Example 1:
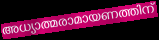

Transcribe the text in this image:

അധ്യാത്മരാമായണത്തിന്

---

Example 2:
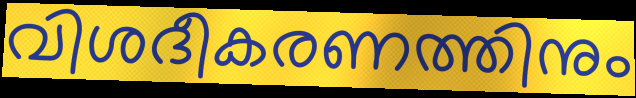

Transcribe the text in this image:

വിശദീകരണത്തിനും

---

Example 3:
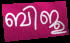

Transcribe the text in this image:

ബിജു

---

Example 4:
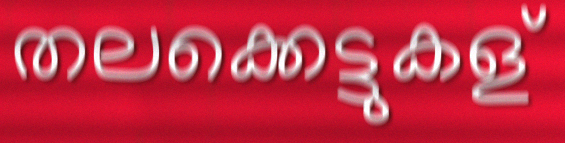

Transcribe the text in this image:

തലക്കെട്ടുകള്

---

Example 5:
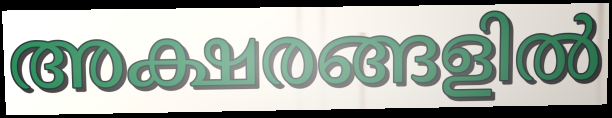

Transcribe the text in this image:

അക്ഷരങ്ങളിൽ